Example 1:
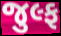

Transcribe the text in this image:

જુલ્ફ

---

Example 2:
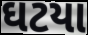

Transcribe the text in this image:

ઘટયા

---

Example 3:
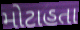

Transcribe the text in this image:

મોટાહતા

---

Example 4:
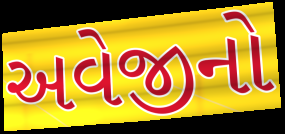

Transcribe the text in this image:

અવેજીનો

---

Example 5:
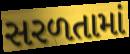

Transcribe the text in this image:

સરળતામાં